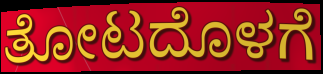
ತೋಟದೊಳಗೆ